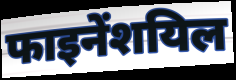
फाइनेंशयिल